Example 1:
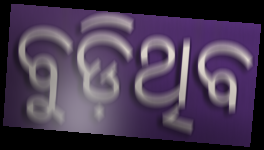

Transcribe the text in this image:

ବୁଡ଼ିଥିବ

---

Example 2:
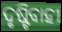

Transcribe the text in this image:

ଦୃଷ୍ଟିବାହୀ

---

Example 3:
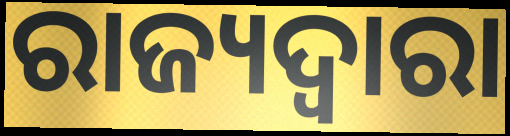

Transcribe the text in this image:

ରାଜ୍ୟଦ୍ୱାରା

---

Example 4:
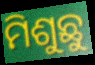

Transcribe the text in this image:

ମିଶୁଛୁ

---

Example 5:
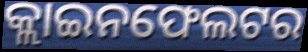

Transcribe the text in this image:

କ୍ଲାଇନଫେଲଟର